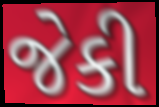
જેકી